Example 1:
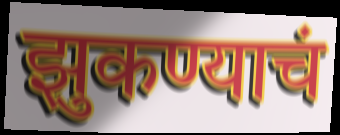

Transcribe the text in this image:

झुकण्याचं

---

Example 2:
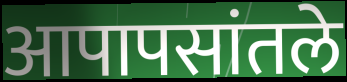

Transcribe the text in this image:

आपापसांतले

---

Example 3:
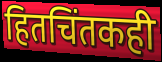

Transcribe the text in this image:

हितचिंतकही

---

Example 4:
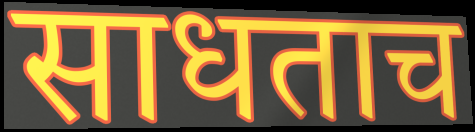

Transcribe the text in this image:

साधताच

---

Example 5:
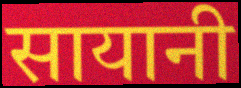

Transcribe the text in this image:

सायानी